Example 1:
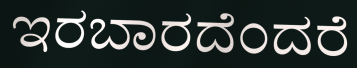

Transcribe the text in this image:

ಇರಬಾರದೆಂದರೆ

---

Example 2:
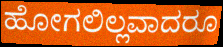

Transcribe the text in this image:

ಹೋಗಲಿಲ್ಲವಾದರೂ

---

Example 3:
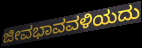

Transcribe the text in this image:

ಜೀವಭಾವವಳಿಯದು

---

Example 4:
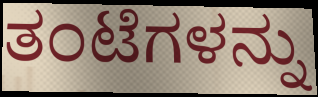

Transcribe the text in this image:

ತಂಟೆಗಳನ್ನು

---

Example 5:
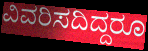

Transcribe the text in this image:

ವಿವರಿಸದಿದ್ದರೂ